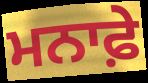
ਮਨਾਫ਼ੇ